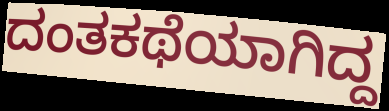
ದಂತಕಥೆಯಾಗಿದ್ದ